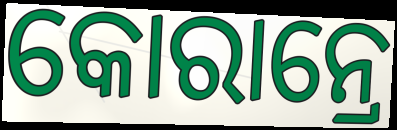
କୋରାନ୍ରେ